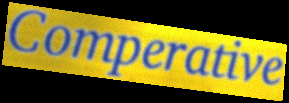
Comperative